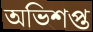
অভিশপ্ত